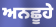
ਅਨਛੂਹੇ